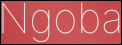
Ngoba